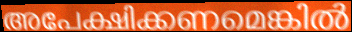
അപേക്ഷിക്കണമെങ്കിൽ